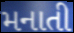
મનાતી